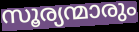
സൂര്യന്മാരും